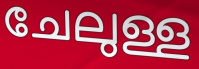
ചേലുള്ള